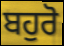
ਬਹੁਰੋ